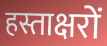
हस्ताक्षरों